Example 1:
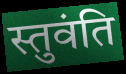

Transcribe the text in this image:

स्तुवंति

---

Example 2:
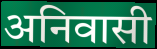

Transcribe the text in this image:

अनिवासी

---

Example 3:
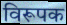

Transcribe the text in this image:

विरूपक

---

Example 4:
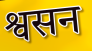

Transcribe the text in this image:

श्वसन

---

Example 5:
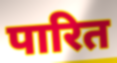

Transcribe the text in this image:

पारित